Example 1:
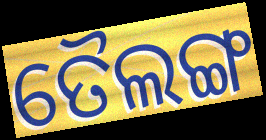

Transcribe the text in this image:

ତୈଲଙ୍ଗ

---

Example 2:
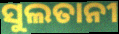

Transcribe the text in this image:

ସୁଲତାନୀ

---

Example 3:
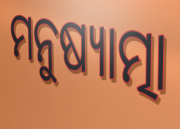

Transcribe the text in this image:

ମନୁଷ୍ୟାତ୍ମା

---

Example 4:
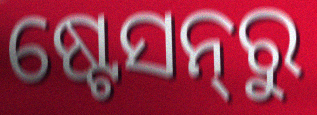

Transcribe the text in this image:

ଷ୍ଟେସନ୍‌ରୁ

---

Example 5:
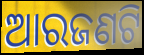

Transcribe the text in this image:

ଆରଜଣଟି